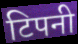
टिपनी